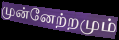
முன்னேற்றமும்